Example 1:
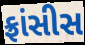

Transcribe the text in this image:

ફ્રાંસીસ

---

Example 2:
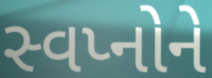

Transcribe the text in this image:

સ્વપ્નોને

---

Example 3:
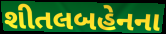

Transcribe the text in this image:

શીતલબહેનના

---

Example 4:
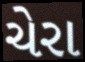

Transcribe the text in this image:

ચેરા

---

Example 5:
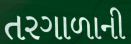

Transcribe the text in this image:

તરગાળાની